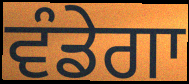
ਵੰਡੇਗਾ